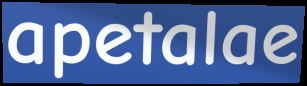
apetalae